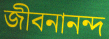
জীবনানন্দ